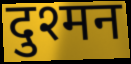
दुश्मन